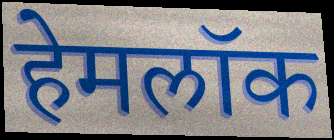
हेमलॉक